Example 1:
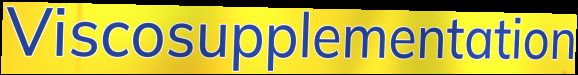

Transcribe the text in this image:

Viscosupplementation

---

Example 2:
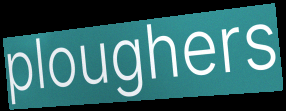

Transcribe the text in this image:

ploughers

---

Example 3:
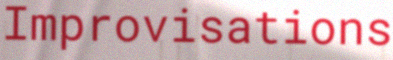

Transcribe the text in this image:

Improvisations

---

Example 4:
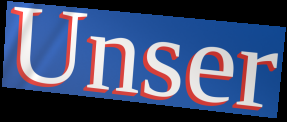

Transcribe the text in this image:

Unser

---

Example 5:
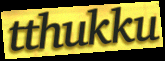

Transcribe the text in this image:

tthukku